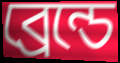
ব্রেন্ডে